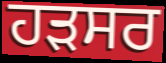
ਹੜਸਰ